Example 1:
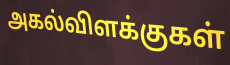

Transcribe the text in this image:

அகல்விளக்குகள்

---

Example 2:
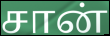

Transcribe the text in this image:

சான்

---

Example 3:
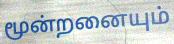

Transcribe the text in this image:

மூன்றனையும்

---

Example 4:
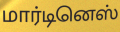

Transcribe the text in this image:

மார்டினெஸ்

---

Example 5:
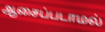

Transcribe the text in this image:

ஆசைப்படாமல்